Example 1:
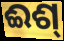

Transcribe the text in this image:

ଈଶ୍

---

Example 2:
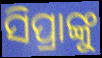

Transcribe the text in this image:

ସିପ୍ରାଙ୍କୁ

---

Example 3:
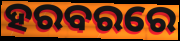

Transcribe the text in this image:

ହରବରରେ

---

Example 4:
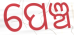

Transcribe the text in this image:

ପେଞ୍ଚ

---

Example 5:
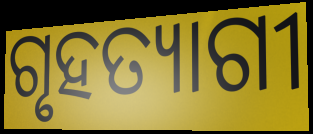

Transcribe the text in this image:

ଗୃହତ୍ୟାଗୀ